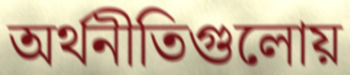
অর্থনীতিগুলোয়